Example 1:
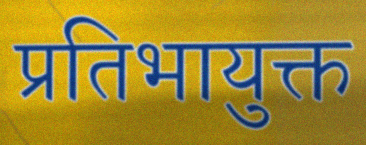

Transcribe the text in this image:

प्रतिभायुक्त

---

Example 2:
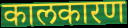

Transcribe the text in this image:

कालकारण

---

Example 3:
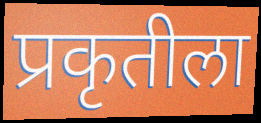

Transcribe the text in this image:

प्रकृतीला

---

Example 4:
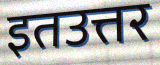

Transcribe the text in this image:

इतउत्तर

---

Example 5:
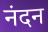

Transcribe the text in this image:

नंदन